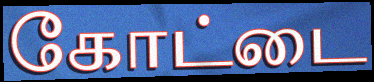
கோட்டை